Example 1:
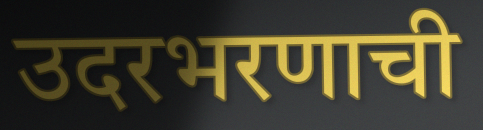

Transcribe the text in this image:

उदरभरणाची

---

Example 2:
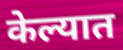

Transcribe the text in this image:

केल्यात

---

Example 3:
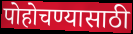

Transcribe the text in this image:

पोहोचण्यासाठी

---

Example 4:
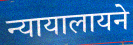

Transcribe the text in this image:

न्यायालायने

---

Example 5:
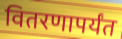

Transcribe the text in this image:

वितरणापर्यंत